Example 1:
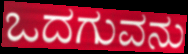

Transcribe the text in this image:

ಒದಗುವನು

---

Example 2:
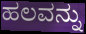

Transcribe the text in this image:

ಹಲವನ್ನು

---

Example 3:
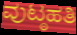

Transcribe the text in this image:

ವುಟ್ಠಹತಿ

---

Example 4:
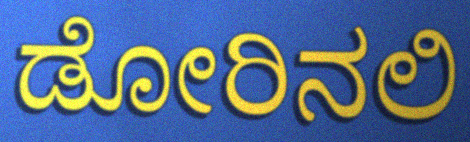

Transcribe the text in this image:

ಡೋರಿನಲಿ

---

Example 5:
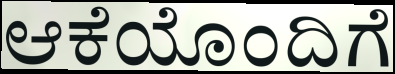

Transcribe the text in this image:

ಆಕೆಯೊಂದಿಗೆ